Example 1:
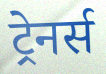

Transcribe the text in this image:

ट्रेनर्स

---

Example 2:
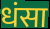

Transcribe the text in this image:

धंसा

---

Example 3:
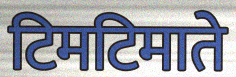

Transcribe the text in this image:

टिमटिमाते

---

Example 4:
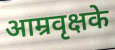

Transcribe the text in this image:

आम्रवृक्षके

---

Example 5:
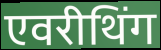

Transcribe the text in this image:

एवरीथिंग